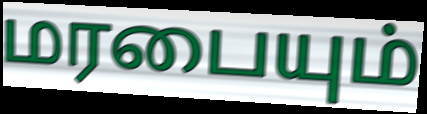
மரபையும்